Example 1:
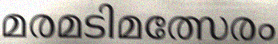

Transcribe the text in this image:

മരമടിമത്സേരം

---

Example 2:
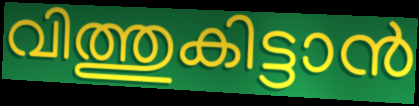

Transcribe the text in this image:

വിത്തുകിട്ടാൻ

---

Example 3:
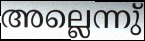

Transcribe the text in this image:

അല്ലെന്നു്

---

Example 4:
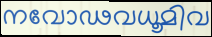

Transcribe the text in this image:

നവോഢവധൂമിവ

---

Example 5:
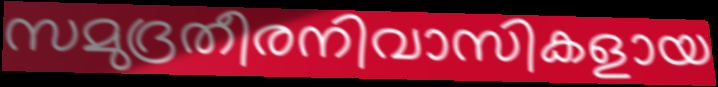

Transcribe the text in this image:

സമുദ്രതീരനിവാസികളായ